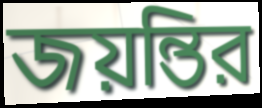
জয়ন্তির